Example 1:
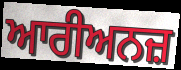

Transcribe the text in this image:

ਆਰੀਅਨਜ਼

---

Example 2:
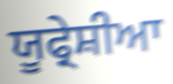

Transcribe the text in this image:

ਯੂਫ੍ਰੇਸ਼ੀਆ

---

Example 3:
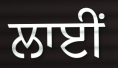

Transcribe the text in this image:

ਲਾਈਂ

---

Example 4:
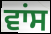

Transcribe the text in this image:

ਵਾਂਸ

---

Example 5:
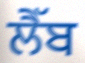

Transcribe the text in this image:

ਲੈੱਬ